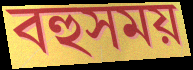
বহুসময়